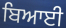
ਬਿਆਈ